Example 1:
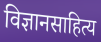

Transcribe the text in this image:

विज्ञानसाहित्य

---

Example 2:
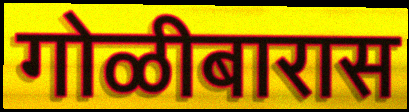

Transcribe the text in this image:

गोळीबारास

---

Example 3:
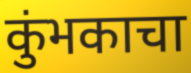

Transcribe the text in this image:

कुंभकाचा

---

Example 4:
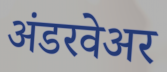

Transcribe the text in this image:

अंडरवेअर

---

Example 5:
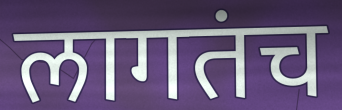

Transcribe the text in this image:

लागतंच